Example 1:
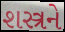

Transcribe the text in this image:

શસ્ત્રને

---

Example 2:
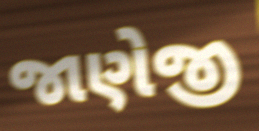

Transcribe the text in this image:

જાણેજી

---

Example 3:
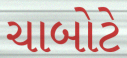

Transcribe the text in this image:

ચાબોટે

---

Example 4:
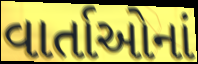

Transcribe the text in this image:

વાર્તાઓનાં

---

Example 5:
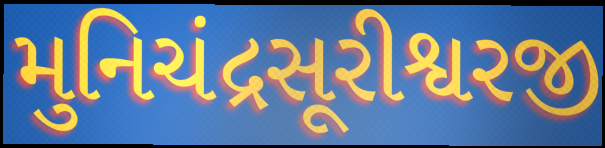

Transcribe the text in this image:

મુનિચંદ્રસૂરીશ્વરજી